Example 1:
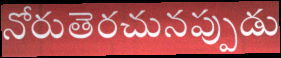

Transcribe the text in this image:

నోరుతెరచునప్పుడు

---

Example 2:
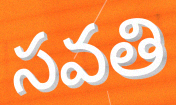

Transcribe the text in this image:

సవతి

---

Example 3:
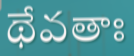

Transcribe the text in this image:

థేవతాః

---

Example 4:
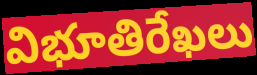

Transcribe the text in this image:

విభూతిరేఖలు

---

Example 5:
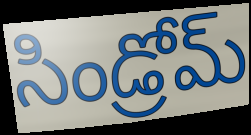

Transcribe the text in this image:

సిండ్రోమ్